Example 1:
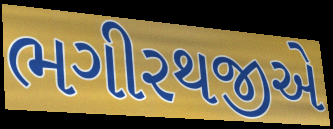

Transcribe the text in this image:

ભગીરથજીએ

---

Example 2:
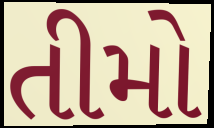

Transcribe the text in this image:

તીમો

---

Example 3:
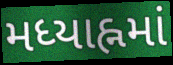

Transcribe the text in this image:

મધ્યાહ્નમાં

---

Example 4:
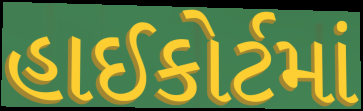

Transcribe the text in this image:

હાઈકોર્ટમાં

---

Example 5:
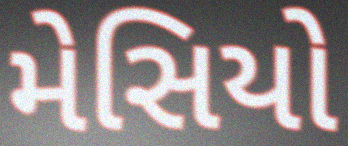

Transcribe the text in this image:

મેસિયો